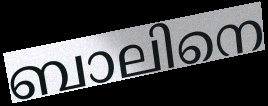
ബാലിനെ